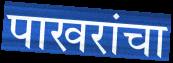
पाखरांचा